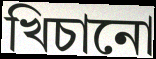
খিচানো